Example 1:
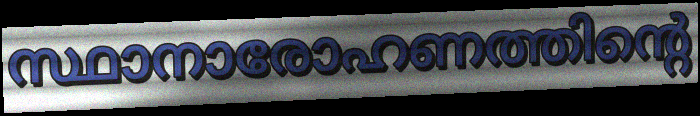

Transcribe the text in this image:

സ്ഥാനാരോഹണത്തിന്റെ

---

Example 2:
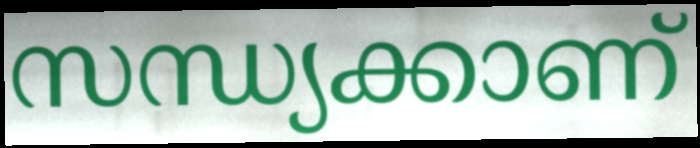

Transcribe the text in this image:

സന്ധ്യക്കാണ്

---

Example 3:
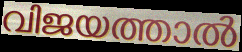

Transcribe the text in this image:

വിജയത്താൽ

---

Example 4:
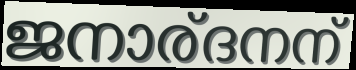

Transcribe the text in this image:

ജനാര്ദനന്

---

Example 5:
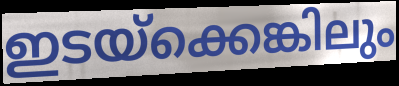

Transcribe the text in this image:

ഇടയ്ക്കെങ്കിലും